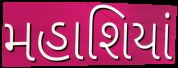
મહાશિયાં